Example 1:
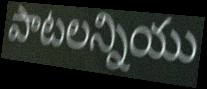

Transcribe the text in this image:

పాటలన్నియు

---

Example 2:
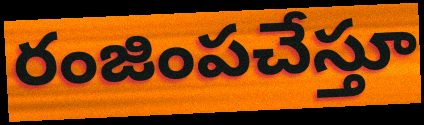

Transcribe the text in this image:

రంజింపచేస్తూ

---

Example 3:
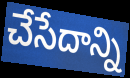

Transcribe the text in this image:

చేసేదాన్ని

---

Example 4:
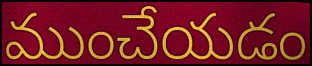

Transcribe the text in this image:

ముంచేయడం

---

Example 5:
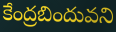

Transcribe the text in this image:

కేంద్రబిందువని